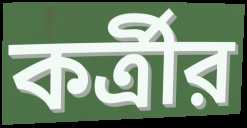
কর্ত্রীর